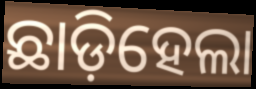
ଛାଡ଼ିହେଲା